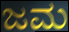
ಜಮ